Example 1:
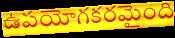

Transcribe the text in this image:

ఉపయోగకరమైంది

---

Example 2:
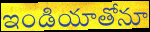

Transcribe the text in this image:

ఇండియాతోనూ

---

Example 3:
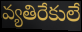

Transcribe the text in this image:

వ్యతిరేకులే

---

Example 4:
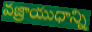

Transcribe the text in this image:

వజ్రాయుధాన్ని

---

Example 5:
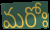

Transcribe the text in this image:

మరోః